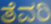
ತೆವರಿ